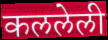
कललेली